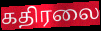
கதிரலை